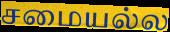
சமையல்ல